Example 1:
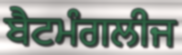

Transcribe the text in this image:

ਬੈਟਮੰਗਲੀਜ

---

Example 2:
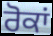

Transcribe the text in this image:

ਰੋਕਾਂ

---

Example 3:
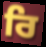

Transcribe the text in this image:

ਰਿ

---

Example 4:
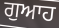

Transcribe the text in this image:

ਗੁਆਹ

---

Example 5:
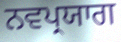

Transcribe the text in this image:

ਨਵਪ੍ਰਯਾਗ